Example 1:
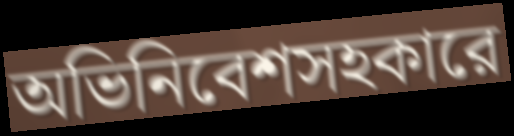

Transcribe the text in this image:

অভিনিবেশসহকারে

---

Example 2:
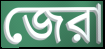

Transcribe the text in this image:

জেরা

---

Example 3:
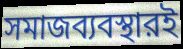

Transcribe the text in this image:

সমাজব্যবস্থারই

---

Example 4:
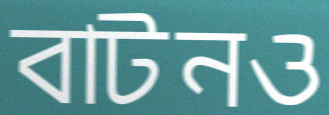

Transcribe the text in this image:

বাটনও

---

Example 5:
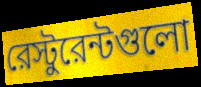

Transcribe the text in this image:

রেস্টুরেন্টগুলো